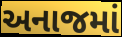
અનાજમાં